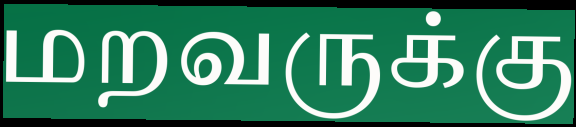
மறவருக்கு